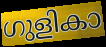
ഗുളികാ